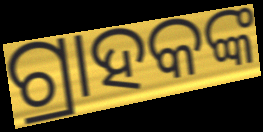
ଗ୍ରାହକଙ୍କ